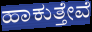
ಹಾಕುತ್ತೇವೆ